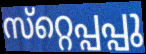
സ്‌റ്റെപ്പപ്പു